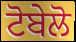
ਟੋਬੇਲੋ